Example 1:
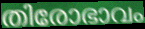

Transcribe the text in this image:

തിരോഭാവം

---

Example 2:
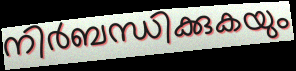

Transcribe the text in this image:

നിർബന്ധിക്കുകയും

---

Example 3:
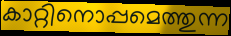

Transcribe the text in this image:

കാറ്റിനൊപ്പമെത്തുന്ന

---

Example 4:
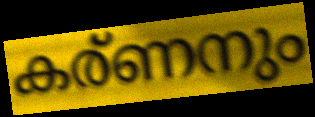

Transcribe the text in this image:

കര്ണനും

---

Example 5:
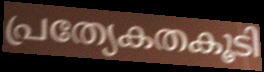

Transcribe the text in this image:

പ്രത്യേകതകൂടി